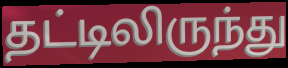
தட்டிலிருந்து